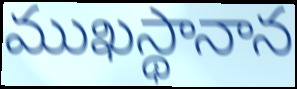
ముఖస్థానాన